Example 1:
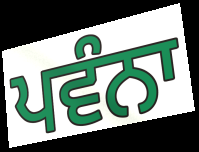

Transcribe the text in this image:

ਪਵੰਨਾ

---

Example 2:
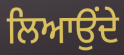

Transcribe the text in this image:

ਲਿਆਉਂਦੇ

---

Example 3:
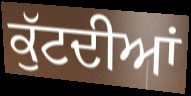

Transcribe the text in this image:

ਕੁੱਟਦੀਆਂ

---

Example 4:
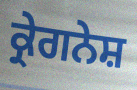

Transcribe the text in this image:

ਕ੍ਰੇਗਨੇਸ਼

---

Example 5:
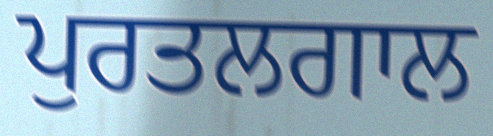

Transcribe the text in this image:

ਪੁਰਤਲਗਾਲ